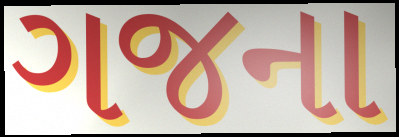
ગજના